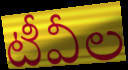
టీవీల